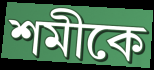
শমীকে